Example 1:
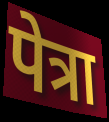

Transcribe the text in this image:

पेत्रा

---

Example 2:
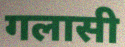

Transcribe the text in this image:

गलासी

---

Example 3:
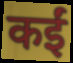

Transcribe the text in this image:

कईं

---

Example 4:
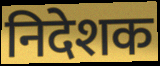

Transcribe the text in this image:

निदेशक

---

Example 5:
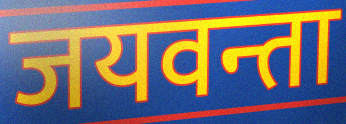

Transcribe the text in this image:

जयवन्ता